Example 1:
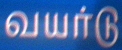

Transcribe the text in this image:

வயர்டு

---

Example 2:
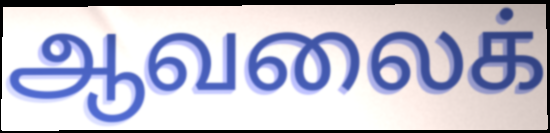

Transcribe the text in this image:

ஆவலைக்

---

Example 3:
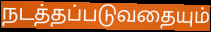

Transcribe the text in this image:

நடத்தப்படுவதையும்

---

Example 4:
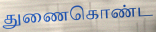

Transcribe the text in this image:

துணைகொண்ட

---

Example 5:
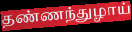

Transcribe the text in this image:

தண்ணந்துழாய்